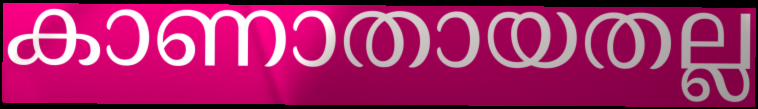
കാണാതായതല്ല